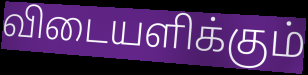
விடையளிக்கும்